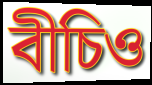
বীচিও